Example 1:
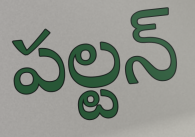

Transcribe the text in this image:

పల్టన్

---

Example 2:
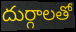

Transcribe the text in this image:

దుర్గాలతో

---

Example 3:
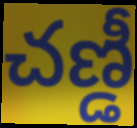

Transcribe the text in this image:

చణ్డీ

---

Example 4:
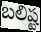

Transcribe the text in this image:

బలిష్ట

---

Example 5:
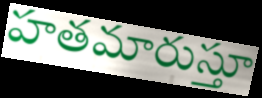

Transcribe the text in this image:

హతమారుస్తూ